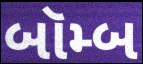
બૉમ્બ